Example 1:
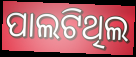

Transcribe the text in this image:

ପାଲଟିଥିଲ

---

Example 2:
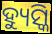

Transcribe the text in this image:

ହ୍ୟୁସ୍କି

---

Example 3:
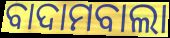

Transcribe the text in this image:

ବାଦାମବାଲା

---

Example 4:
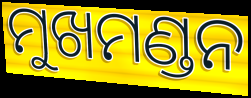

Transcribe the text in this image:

ମୁଖମଣ୍ଡନ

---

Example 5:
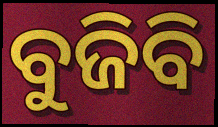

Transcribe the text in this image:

ବୁଜିବି